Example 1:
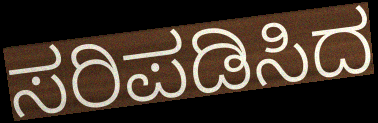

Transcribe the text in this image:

ಸರಿಪಡಿಸಿದ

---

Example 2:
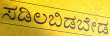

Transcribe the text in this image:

ಸಡಿಲಬಿಡಬೇಡ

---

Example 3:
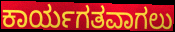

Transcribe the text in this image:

ಕಾರ್ಯಗತವಾಗಲು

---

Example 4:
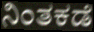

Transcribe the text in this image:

ನಿಂತಕಡೆ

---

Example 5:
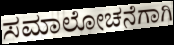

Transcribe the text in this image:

ಸಮಾಲೋಚನೆಗಾಗಿ